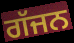
ਗੱਜਨ